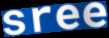
sree